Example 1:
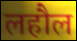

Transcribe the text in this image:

लहौल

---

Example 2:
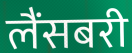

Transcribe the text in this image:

लैंसबरी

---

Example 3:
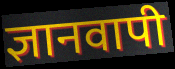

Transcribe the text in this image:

ज्ञानवापी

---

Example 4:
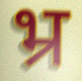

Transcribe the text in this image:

भ्र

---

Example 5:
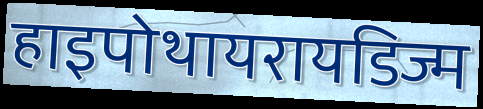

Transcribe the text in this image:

हाइपोथायरायडिज्म